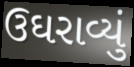
ઉઘરાવ્યું